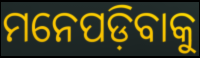
ମନେପଡ଼ିବାକୁ